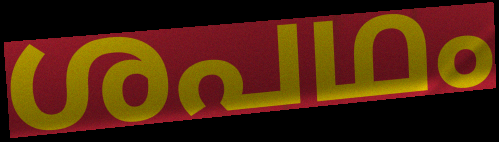
ശപഥം